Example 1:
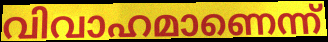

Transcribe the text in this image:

വിവാഹമാണെന്ന്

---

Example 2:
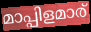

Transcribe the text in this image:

മാപ്പിളമാര്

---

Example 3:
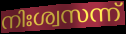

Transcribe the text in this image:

നിഃശ്വസന്ന്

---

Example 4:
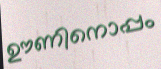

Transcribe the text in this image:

ഊണിനൊപ്പം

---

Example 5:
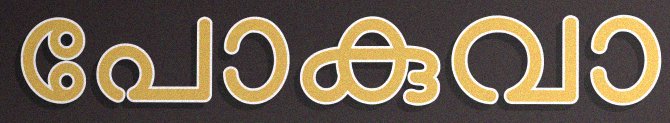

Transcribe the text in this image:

പോകുവാ